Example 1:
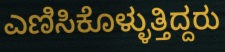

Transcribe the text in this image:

ಎಣಿಸಿಕೊಳ್ಳುತ್ತಿದ್ದರು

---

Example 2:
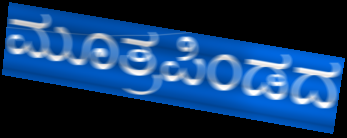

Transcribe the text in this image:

ಮೂತ್ರಪಿಂಡದ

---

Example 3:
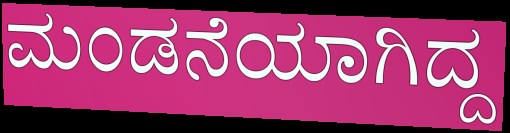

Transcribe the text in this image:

ಮಂಡನೆಯಾಗಿದ್ದ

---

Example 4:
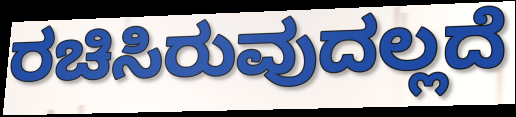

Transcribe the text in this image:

ರಚಿಸಿರುವುದಲ್ಲದೆ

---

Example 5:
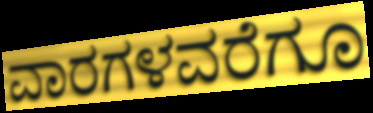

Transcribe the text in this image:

ವಾರಗಳವರೆಗೂ